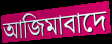
আজিমাবাদে